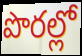
పొరల్లో